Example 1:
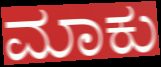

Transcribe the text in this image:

ಮಾಕು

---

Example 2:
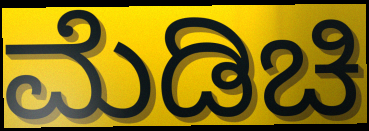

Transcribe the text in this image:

ಮೆಡಿಚಿ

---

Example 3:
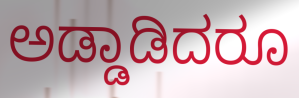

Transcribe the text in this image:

ಅಡ್ಡಾಡಿದರೂ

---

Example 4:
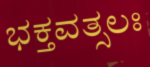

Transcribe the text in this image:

ಭಕ್ತವತ್ಸಲಃ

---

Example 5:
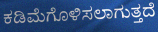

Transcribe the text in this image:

ಕಡಿಮೆಗೊಳಿಸಲಾಗುತ್ತದೆ